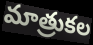
మాత్రుకల